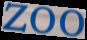
zoo